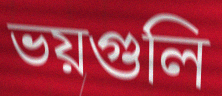
ভয়গুলি